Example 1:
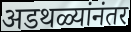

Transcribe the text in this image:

अडथळ्यांनंतर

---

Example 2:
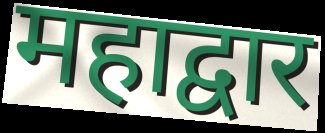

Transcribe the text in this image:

महाद्वार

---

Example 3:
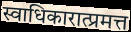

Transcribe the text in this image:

स्वाधिकारात्प्रमत्त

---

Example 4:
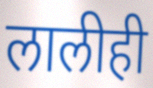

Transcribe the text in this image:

लालीही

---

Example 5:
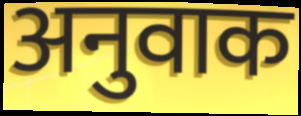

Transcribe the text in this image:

अनुवाक